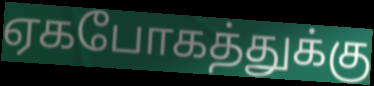
ஏகபோகத்துக்கு